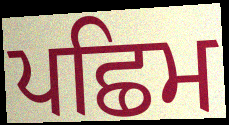
ਪਛਿਮ